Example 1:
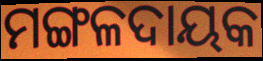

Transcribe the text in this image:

ମଙ୍ଗଳଦାୟକ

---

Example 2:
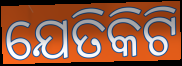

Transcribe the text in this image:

ଯେତିକିଟି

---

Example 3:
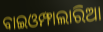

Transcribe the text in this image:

ବାଇଓମ୍ଫାଲାରିଆ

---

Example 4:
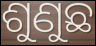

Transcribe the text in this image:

ଶୁଣୁଛ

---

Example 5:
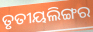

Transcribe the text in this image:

ତୃତୀୟଲିଙ୍ଗର